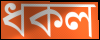
ধকল